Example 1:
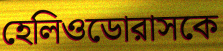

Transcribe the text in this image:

হেলিওডোরাসকে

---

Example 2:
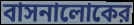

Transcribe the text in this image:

বাসনালোকের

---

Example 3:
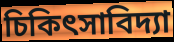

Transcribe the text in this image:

চিকিৎসাবিদ্যা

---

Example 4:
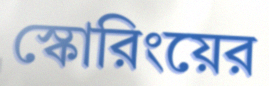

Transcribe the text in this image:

স্কোরিংয়ের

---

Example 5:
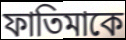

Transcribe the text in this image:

ফাতিমাকে